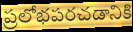
ప్రలోభపరచడానికి